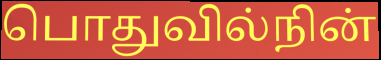
பொதுவில்நின்